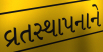
વ્રતસ્થાપનાને